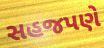
સહજપણે